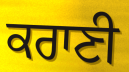
ਕਰਾਣੀ